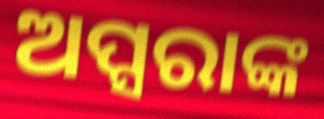
ଅପ୍ସରାଙ୍କ